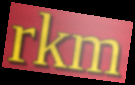
rkm